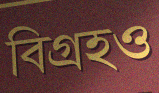
বিগ্রহও